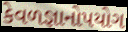
કેવળજ્ઞાનોપયોગ